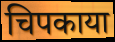
चिपकाया